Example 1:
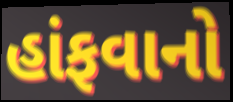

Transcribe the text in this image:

હાંફવાનો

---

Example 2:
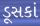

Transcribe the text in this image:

ડૂસકાં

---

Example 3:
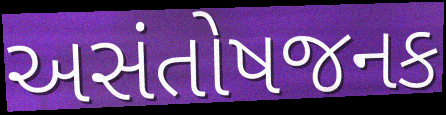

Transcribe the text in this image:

અસંતોષજનક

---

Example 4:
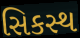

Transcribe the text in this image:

સિકસ્થ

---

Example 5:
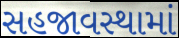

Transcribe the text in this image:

સહજાવસ્થામાં